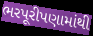
ભરપૂરીપણામાંથી